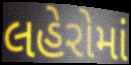
લહેરોમાં